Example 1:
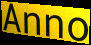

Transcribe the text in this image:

Anno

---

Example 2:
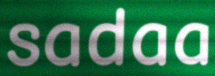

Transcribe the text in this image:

sadaa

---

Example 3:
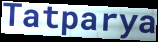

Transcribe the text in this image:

Tatparya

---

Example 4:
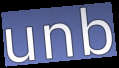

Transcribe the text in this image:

unb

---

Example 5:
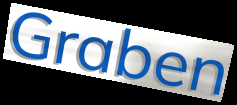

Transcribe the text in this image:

Graben